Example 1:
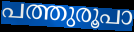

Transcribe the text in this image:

പത്തുരൂപാ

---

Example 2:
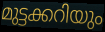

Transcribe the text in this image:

മുട്ടക്കറിയും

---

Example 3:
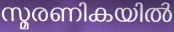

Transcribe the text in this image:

സ്മരണികയിൽ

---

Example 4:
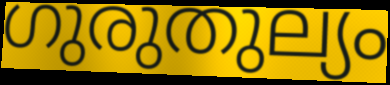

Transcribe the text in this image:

ഗുരുതുല്യം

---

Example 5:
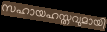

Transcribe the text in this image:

സഹായഹസ്തവുമായി